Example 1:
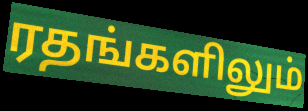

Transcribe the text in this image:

ரதங்களிலும்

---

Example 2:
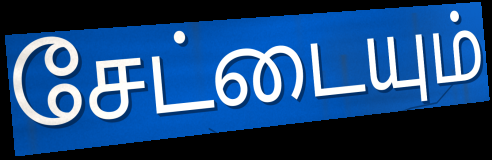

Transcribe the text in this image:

சேட்டையும்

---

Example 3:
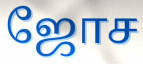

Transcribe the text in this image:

ஜோச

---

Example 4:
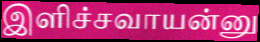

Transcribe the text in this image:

இளிச்சவாயன்னு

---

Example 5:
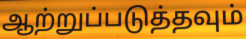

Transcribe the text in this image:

ஆற்றுப்படுத்தவும்